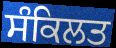
ਸੰਕਿਲਤ